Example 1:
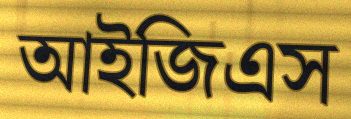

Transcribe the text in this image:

আইজিএস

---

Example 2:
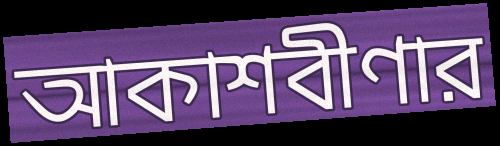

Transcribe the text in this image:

আকাশবীণার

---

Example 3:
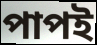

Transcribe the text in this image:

পাপই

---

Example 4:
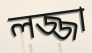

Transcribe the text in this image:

লজ্জা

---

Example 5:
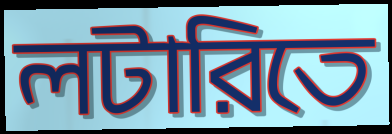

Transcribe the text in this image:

লটারিতে